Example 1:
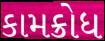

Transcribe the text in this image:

કામક્રોધ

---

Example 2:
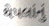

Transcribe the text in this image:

થેપલાંનું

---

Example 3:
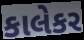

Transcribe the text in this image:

કાલેકર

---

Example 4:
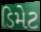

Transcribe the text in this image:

ડિમેટ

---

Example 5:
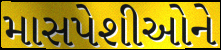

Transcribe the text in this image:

માસપેશીઓને